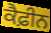
ਕੈਫ਼ੀਨ